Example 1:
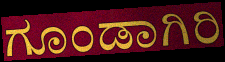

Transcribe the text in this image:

ಗೂಂಡಾಗಿರಿ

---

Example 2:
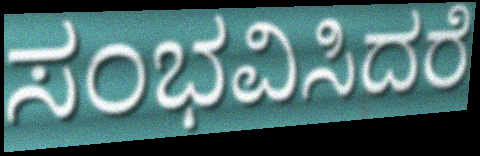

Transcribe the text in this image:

ಸಂಭವಿಸಿದರೆ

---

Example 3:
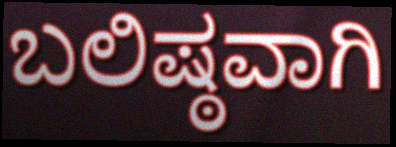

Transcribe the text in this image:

ಬಲಿಷ್ಠವಾಗಿ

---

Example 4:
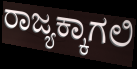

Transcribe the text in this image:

ರಾಜ್ಯಕ್ಕಾಗಲಿ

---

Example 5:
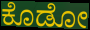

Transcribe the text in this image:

ಕೊಡೋ